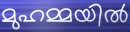
മുഹമ്മയിൽ